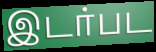
இடர்பட